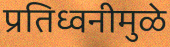
प्रतिध्वनीमुळे